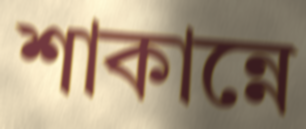
শাকান্নে